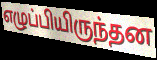
எழுப்பியிருந்தன